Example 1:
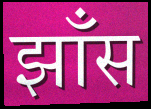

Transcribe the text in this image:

झाँस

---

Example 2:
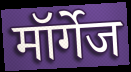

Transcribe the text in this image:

मॉर्गेज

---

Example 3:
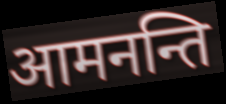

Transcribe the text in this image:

आमनन्ति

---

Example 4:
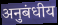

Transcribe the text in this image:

अनुबंधीय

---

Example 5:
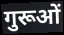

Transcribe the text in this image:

गुरूओं